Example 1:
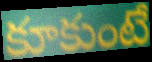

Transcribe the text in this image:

కూకుంటే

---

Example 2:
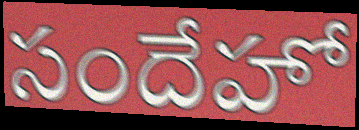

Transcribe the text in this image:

సందేహో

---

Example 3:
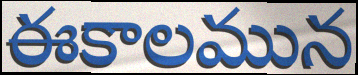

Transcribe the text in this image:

ఈకాలమున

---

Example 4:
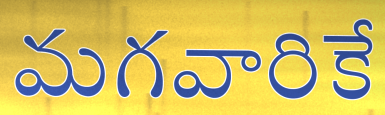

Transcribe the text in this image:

మగవారికే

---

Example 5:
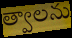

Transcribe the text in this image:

త్వాలను